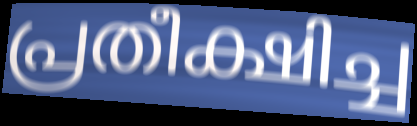
പ്രതീക്ഷിച്ച